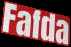
Fafda